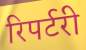
रिपर्टरी